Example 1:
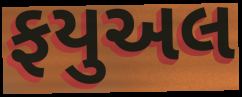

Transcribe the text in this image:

ફયુઅલ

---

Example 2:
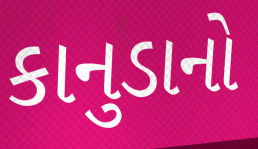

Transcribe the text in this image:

કાનુડાનો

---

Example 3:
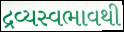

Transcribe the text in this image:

દ્રવ્યસ્વભાવથી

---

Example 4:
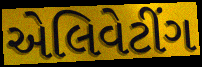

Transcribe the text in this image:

એલિવેટીંગ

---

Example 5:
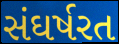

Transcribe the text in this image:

સંઘર્ષરત